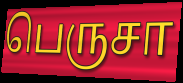
பெருசா